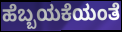
ಹೆಬ್ಬಯಕೆಯಂತೆ